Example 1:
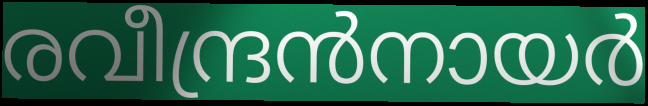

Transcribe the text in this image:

രവീന്ദ്രൻനായർ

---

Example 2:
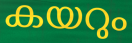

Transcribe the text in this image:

കയറും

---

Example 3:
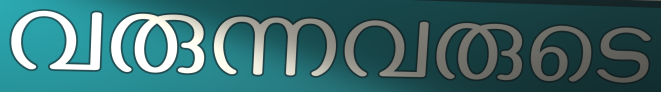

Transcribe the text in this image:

വരുന്നവരുടെ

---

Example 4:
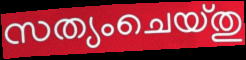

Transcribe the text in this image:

സത്യംചെയ്തു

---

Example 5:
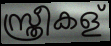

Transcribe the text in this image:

സ്ത്രീകള്